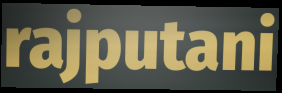
rajputani